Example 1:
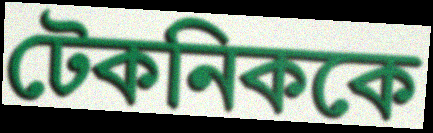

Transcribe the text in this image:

টেকনিককে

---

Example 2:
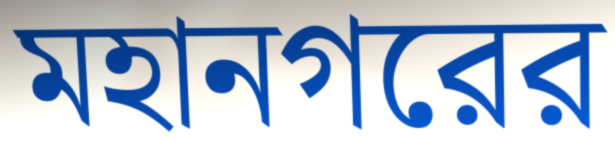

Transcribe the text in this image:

মহানগরের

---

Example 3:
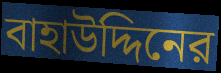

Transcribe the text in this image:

বাহাউদ্দিনের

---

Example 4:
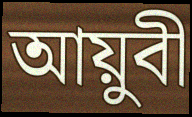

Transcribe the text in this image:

আয়ুবী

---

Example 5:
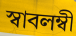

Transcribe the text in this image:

স্বাবলম্বী